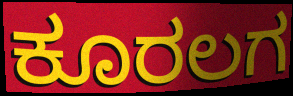
ಕೂರಲಗ